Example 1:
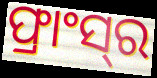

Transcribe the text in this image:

ଫ୍ରାଂସ୍‍ର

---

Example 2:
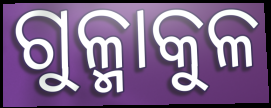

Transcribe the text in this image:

ଗୁଳ୍ମାକୁଳ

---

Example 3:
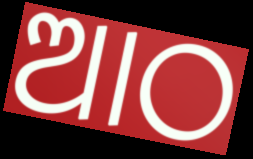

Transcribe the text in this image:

ଆଠ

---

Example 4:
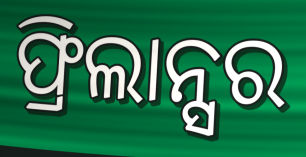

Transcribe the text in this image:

ଫ୍ରିଲାନ୍ସର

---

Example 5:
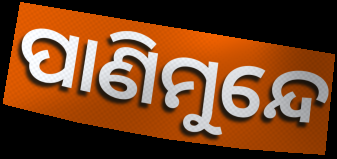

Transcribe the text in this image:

ପାଣିମୁନ୍ଦେ